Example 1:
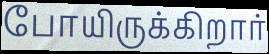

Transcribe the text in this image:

போயிருக்கிறார்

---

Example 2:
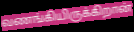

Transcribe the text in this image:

வணங்கியிருக்கிறான்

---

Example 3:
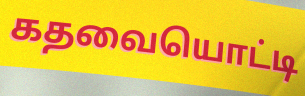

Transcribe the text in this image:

கதவையொட்டி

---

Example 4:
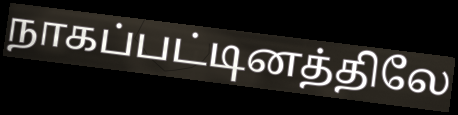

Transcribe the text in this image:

நாகப்பட்டினத்திலே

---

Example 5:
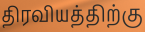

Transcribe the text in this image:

திரவியத்திற்கு